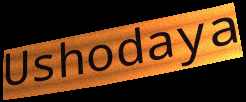
Ushodaya